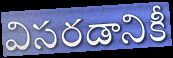
విసరడానికీ